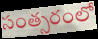
సంత్సరంలో